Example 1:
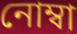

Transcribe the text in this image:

নোম্বা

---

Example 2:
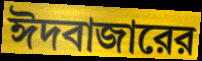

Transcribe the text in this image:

ঈদবাজারের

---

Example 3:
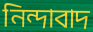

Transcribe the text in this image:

নিন্দাবাদ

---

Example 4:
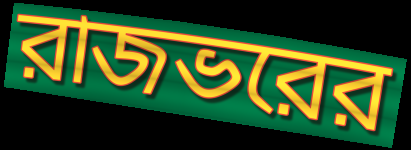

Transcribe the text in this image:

রাজভরের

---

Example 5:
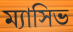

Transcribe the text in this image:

ম্যাসিভ